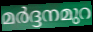
മർദ്ദനമുറ